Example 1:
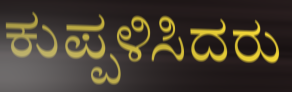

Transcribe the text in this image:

ಕುಪ್ಪಳಿಸಿದರು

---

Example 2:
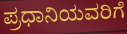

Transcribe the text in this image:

ಪ್ರಧಾನಿಯವರಿಗೆ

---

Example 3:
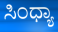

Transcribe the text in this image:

ಸಿಂಧ್ಯಾ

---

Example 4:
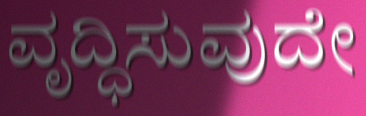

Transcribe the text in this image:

ವೃದ್ಧಿಸುವುದೇ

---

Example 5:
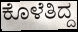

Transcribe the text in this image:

ಕೊಳೆತಿದ್ದ